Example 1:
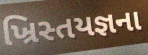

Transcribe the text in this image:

ખ્રિસ્તયજ્ઞના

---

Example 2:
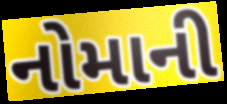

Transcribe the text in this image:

નોમાની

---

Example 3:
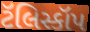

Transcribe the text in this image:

ટૅલિસ્કૉપ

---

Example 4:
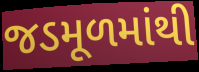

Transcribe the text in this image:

જડમૂળમાંથી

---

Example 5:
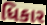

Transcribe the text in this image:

ધિકાર